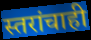
स्तरांचाही